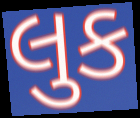
લુક